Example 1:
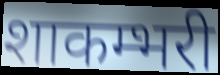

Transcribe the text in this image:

शाकम्भरी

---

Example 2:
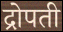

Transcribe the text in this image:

द्रोपती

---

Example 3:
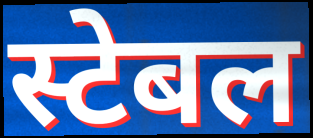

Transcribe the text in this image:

स्टेबल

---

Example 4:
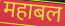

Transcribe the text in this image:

महाबल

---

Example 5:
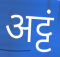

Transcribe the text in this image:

अट्टं